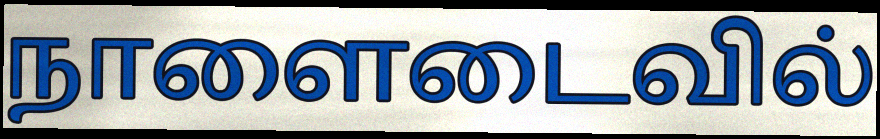
நாளைடைவில்